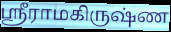
ஸ்ரீராமகிருஷ்ண